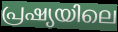
പ്രഷ്യയിലെ